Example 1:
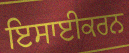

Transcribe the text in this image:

ਇਸਾਈਕਰਨ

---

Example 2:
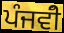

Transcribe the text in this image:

ਪੰਜਵੀਁ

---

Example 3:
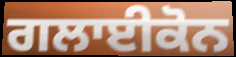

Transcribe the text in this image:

ਗਲਾਈਕੋਨ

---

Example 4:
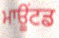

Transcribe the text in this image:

ਮਾਊਂਟਡ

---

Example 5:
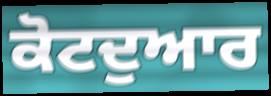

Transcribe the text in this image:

ਕੋਟਦੁਆਰ